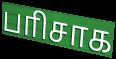
பரிசாக